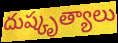
దుష్కృత్యాలు